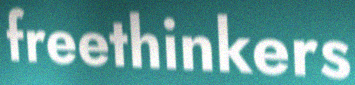
freethinkers